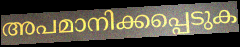
അപമാനിക്കപ്പെടുക